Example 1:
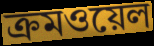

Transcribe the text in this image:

ক্রমওয়েল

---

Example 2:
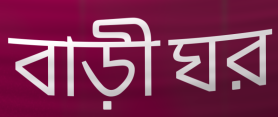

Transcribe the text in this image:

বাড়ীঘর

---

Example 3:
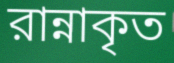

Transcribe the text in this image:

রান্নাকৃত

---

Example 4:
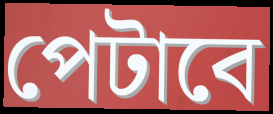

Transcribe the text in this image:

পেটাবে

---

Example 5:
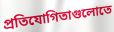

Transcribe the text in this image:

প্রতিযোগিতাগুলোতে